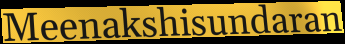
Meenakshisundaran